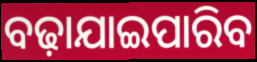
ବଢ଼ାଯାଇପାରିବ